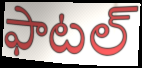
ఫాటల్